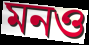
মনও